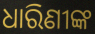
ଧାରିଣୀଙ୍କ